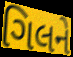
ગિલને